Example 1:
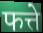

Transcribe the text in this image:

फत्ते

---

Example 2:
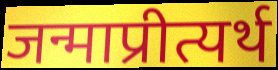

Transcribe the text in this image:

जन्माप्रीत्यर्थ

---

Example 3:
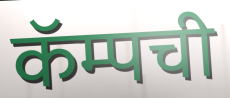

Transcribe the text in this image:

कॅम्पची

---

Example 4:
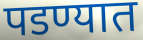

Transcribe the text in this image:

पडण्यात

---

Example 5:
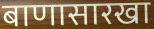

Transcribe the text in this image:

बाणासारखा